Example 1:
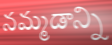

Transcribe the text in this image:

నమ్మడాన్ని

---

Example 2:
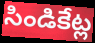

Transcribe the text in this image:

సిండికేట్ల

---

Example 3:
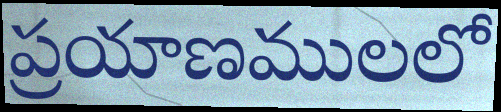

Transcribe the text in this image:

ప్రయాణములలో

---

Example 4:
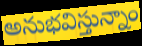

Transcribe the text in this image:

అనుభవిస్తున్నాం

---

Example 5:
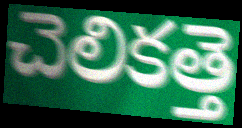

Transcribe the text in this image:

చెలికత్తె